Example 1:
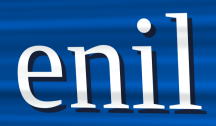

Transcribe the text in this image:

enil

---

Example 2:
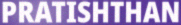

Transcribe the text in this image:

PRATISHTHAN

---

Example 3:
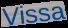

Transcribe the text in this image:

Vissa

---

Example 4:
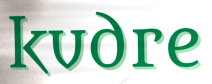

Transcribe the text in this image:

kudre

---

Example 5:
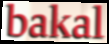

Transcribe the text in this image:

bakal